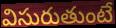
విసురుతుంటే